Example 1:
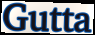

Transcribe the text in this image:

Gutta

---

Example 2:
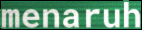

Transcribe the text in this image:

menaruh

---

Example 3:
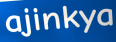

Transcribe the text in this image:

ajinkya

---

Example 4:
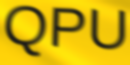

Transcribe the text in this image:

QPU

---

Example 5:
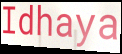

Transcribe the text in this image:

Idhaya